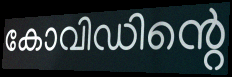
കോവിഡിന്റെ